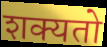
शक्यतो